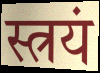
स्त्रयं